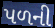
પળની